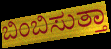
ಬಿಂಬಿಸುತ್ತಾ